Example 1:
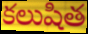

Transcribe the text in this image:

కలుషిత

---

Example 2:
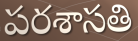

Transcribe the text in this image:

పరశాసతి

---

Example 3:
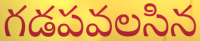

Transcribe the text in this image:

గడపవలసిన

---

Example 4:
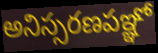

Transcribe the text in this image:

అనిస్సరణపఞ్ఞో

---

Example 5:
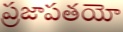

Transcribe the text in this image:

ప్రజాపతయో